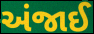
અંજાઈ